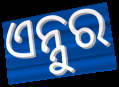
ଏନ୍ନୁର